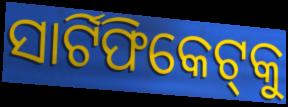
ସାର୍ଟିଫିକେଟ୍‌କୁ